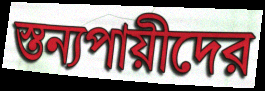
স্তন্যপায়ীদের